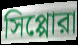
সিপ্পোরা